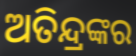
ଅତିନ୍ଦ୍ରଙ୍କର